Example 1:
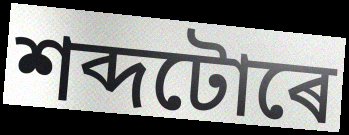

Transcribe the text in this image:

শব্দটোৰে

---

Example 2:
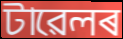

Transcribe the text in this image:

টাৱেলৰ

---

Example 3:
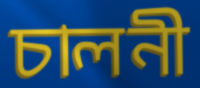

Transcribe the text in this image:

চালনী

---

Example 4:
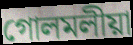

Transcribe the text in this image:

গোলমলীয়া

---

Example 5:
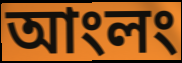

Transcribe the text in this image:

আংলং